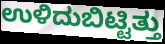
ಉಳಿದುಬಿಟ್ಟಿತ್ತು